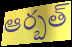
ఆర్బత్